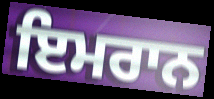
ਇਮਰਾਨ